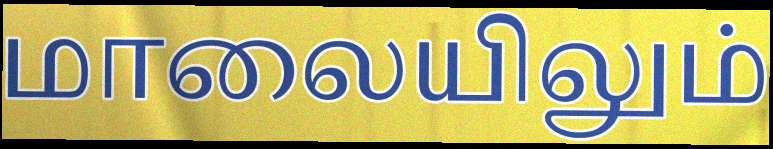
மாலையிலும்